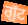
ਗੁੱਟ